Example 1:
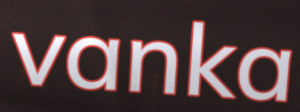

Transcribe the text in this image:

vanka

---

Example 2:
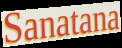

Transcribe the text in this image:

Sanatana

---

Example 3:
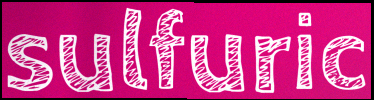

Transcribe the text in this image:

sulfuric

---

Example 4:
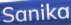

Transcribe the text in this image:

Sanika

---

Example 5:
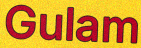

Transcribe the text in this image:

Gulam